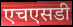
एचएसडी